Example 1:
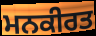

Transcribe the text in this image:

ਮਨਕੀਰਤ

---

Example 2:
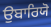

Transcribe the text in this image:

ਉਬਾਰਿਯੋ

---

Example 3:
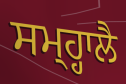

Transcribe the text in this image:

ਸਮ੍ਹ੍ਹਾਲੈ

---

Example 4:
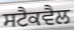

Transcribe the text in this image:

ਸਟੈਕਵੈਲ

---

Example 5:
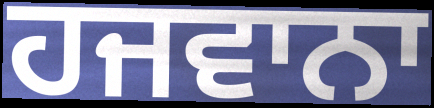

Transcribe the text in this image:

ਹਜਵਾਨਾ